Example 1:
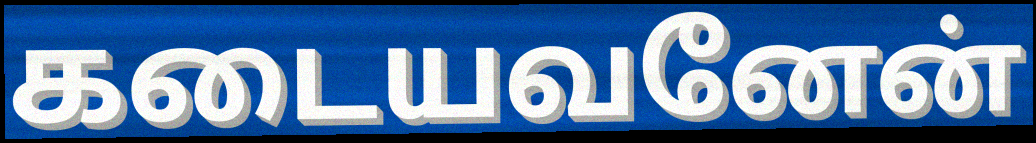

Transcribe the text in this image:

கடையவனேன்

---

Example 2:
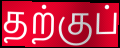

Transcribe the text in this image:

தற்குப்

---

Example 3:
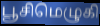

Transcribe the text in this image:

பூசிமெழுகி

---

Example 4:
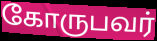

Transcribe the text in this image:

கோருபவர்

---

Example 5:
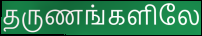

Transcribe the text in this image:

தருணங்களிலே